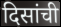
दिसांची